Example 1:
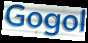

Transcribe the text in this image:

Gogol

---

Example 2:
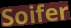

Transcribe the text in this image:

Soifer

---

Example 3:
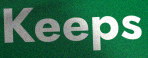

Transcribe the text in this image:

Keeps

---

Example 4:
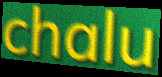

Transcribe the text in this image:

chalu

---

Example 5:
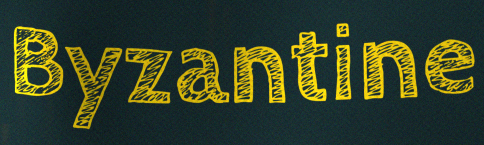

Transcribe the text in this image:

Byzantine